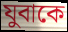
যুবাকে